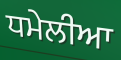
ਧਮੇਲੀਆ